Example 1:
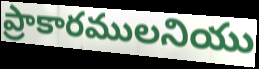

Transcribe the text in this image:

ప్రాకారములనియు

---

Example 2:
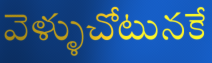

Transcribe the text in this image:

వెళ్ళుచోటునకే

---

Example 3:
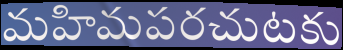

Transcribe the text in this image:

మహిమపరచుటకు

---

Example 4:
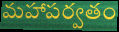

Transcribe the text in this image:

మహాపర్వతం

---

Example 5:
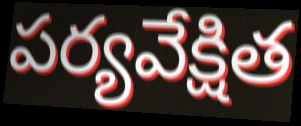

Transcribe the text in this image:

పర్యవేక్షిత